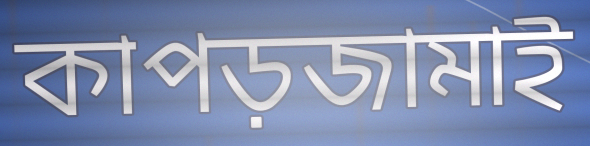
কাপড়জামাই